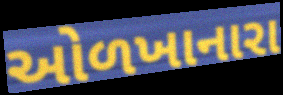
ઓળખાનારા